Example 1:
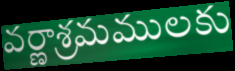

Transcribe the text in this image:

వర్ణాశ్రమములకు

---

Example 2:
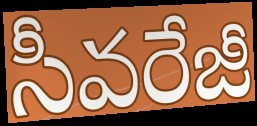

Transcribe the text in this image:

సీవరేజీ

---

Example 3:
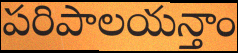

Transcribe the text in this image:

పరిపాలయన్తాం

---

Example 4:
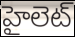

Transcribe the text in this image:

హైలెట్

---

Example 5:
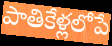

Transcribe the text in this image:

పాతికేళ్లలోపే